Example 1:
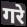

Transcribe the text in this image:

गरे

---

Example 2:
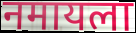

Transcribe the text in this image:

नमायला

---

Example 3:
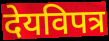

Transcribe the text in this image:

देयविपत्र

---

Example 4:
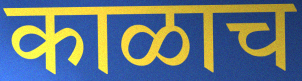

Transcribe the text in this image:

काळाच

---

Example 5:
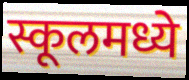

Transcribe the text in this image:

स्कूलमध्ये